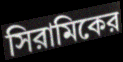
সিরামিকের